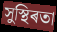
সুস্থিৰতা